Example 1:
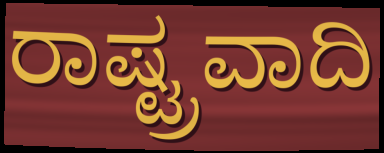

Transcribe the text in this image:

ರಾಷ್ಟ್ರವಾದಿ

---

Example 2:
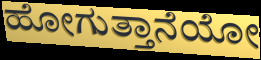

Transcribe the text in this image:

ಹೋಗುತ್ತಾನೆಯೋ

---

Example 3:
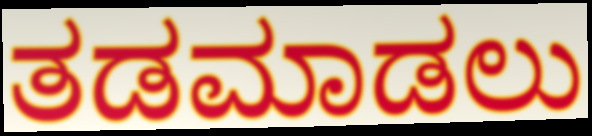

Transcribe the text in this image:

ತಡಮಾಡಲು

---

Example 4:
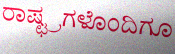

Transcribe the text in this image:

ರಾಷ್ಟ್ರಗಳೊಂದಿಗೂ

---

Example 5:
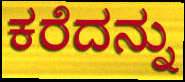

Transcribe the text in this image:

ಕರೆದನ್ನು